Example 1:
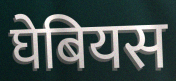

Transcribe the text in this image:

घेबियस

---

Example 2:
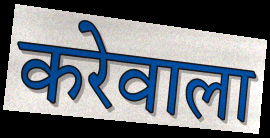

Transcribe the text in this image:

करेवाला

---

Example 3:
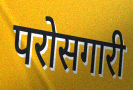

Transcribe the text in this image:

परोसगारी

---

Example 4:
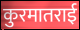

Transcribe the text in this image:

कुरमातराई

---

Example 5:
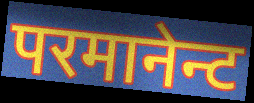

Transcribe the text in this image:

परमानेन्ट